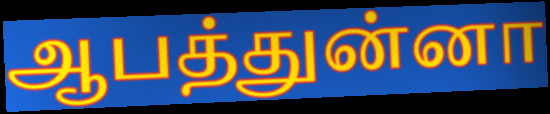
ஆபத்துன்னா